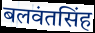
बलवंतसिंह